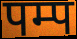
पम्प